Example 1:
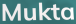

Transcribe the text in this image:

Mukta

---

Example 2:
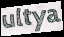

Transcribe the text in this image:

ultya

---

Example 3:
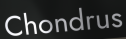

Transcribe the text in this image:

Chondrus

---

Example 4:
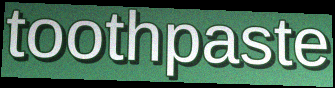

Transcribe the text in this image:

toothpaste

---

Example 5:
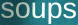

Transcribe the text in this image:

soups